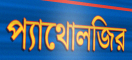
প্যাথোলজির